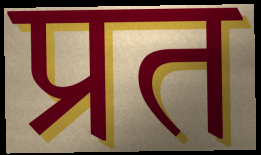
प्रत